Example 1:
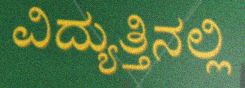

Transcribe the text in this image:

ವಿದ್ಯುತ್ತಿನಲ್ಲಿ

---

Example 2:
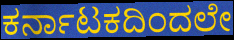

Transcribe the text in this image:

ಕರ್ನಾಟಕದಿಂದಲೇ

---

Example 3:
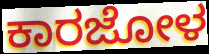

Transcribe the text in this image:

ಕಾರಜೋಳ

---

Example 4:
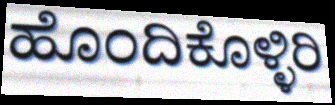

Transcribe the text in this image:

ಹೊಂದಿಕೊಳ್ಳಿರಿ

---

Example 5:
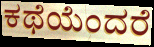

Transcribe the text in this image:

ಕಥೆಯೆಂದರೆ